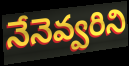
నేనెవ్వరిని